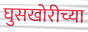
घुसखोरीच्या